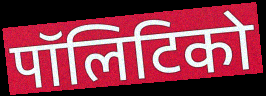
पॉलिटिको